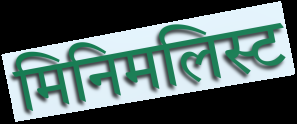
मिनिमलिस्ट